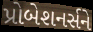
પ્રોબેશનર્સને